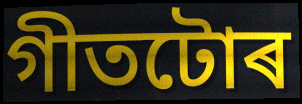
গীতটোৰ